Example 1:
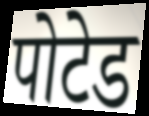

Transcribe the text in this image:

पोटेड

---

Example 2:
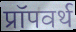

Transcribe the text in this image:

प्रॉपवर्थ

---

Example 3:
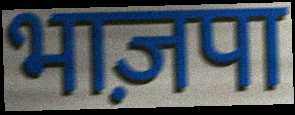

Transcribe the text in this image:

भाज़पा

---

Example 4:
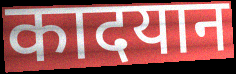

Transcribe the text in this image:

कादयान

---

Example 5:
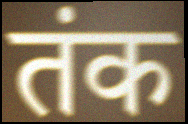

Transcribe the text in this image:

तंक